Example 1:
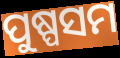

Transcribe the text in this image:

ପୁଷ୍ପସମ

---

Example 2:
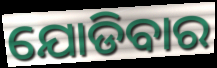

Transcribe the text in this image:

ଯୋଡିବାର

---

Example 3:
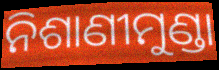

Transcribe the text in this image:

ନିଶାଣୀମୁଣ୍ଡା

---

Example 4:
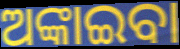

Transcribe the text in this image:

ଅଙ୍କାଇବା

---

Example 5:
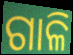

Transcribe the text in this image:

ଗାଳି